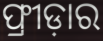
ଫ୍ରୀଡ଼ାର